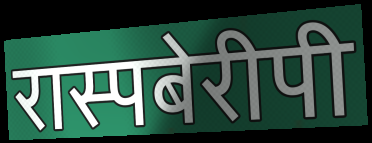
रास्पबेरीपी